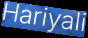
Hariyali